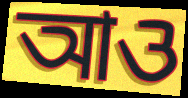
আও